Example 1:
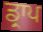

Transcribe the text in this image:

ਡ੍ਰਾਪ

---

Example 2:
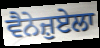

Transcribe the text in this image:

ਵੈਨੇਜ਼ੁਏਲਾ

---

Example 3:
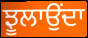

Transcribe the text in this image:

ਝੂਲਾਉਂਦਾ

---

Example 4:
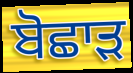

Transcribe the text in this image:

ਬੋਛਾੜ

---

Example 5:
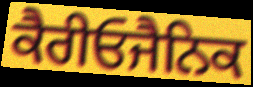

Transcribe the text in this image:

ਕੈਰੀਓਜੈਨਿਕ